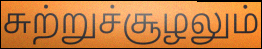
சுற்றுச்சூழலும்